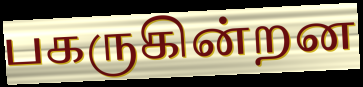
பகருகின்றன